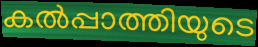
കൽപ്പാത്തിയുടെ